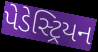
પેડેસ્ટ્રિયન